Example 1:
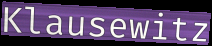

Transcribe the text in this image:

Klausewitz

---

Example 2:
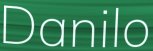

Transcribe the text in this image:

Danilo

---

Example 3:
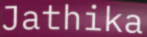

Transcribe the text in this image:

Jathika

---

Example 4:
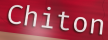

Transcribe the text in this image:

Chiton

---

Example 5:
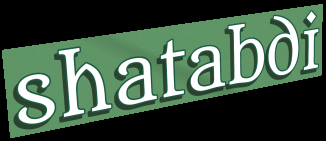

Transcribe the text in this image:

shatabdi